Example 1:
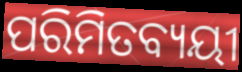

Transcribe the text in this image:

ପରିମିତବ୍ୟୟୀ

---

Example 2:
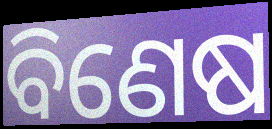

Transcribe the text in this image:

ବିଣେଷ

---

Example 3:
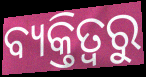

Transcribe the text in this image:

ବ୍ୟକ୍ତିତ୍ୱରୁ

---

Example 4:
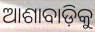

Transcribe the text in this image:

ଆଶାବାଡ଼ିକୁ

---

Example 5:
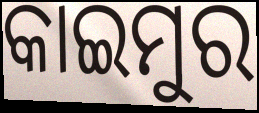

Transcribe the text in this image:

କାଇମୁର